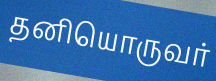
தனியொருவர்